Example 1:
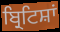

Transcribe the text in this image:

ਬ੍ਰਿਟਿਸ਼ਾਂ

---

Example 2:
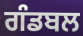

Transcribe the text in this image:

ਗੰਡਬਲ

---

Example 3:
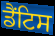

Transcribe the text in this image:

ਡੈਂਟਿਸ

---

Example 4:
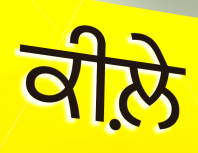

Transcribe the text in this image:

ਕੀਲ਼ੇ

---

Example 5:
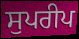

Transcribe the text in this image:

ਸੁਪਰੀਪ